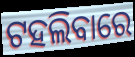
ଟହଲିବାରେ